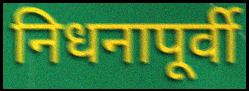
निधनापूर्वी